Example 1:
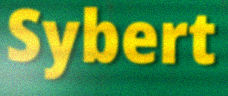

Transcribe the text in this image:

Sybert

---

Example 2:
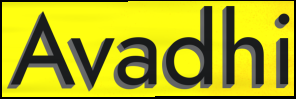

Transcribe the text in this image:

Avadhi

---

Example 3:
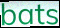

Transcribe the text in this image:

bats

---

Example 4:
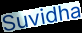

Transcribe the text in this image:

Suvidha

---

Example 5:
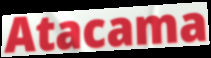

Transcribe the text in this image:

Atacama